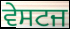
ਵੇਸਟਜ